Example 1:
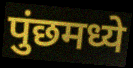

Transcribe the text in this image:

पुंछमध्ये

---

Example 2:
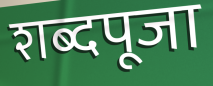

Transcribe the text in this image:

शब्दपूजा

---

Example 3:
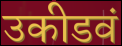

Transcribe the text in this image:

उकीडवं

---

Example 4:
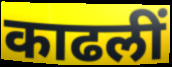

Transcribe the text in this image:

काढलीं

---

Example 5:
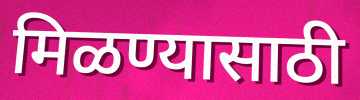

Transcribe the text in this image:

मिळण्यासाठी